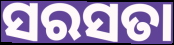
ସରସତା